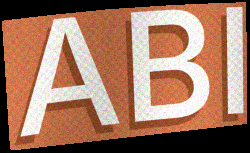
ABI